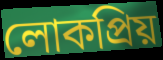
লোকপ্ৰিয়